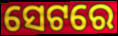
ସେଟରେ